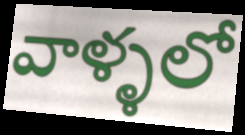
వాళ్ళలో